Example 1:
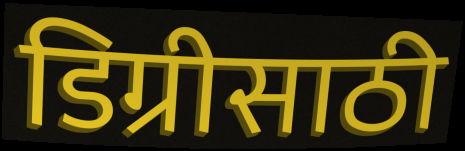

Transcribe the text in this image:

डिग्रीसाठी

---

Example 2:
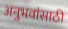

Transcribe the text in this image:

अनुभवांसाठी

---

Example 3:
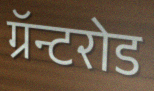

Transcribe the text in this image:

ग्रॅन्टरोड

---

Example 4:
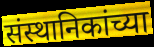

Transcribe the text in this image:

संस्थानिकांच्या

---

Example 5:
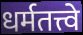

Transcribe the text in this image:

धर्मतत्त्वे